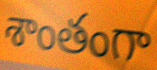
శాంతంగా